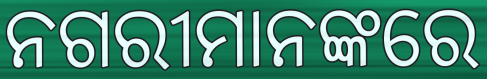
ନଗରୀମାନଙ୍କରେ